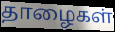
தாழைகள்